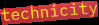
technicity